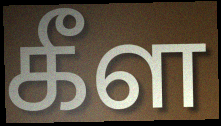
கீள